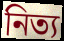
নিত্য